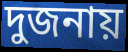
দুজনায়